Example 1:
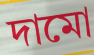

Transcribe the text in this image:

দামো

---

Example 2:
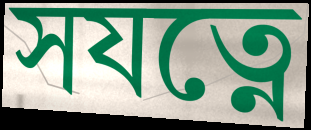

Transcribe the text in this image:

সযত্নে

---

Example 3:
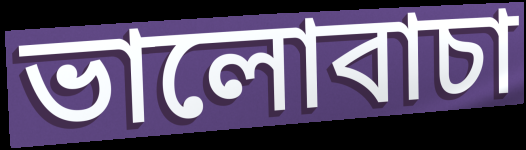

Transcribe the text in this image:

ভালোবাচা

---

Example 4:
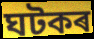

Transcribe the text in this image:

ঘটকৰ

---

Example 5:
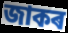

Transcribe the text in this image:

জাকৰ